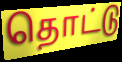
தொட்டு